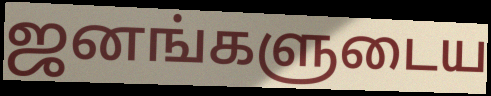
ஜனங்களுடைய